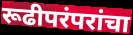
रूढीपरंपरांचा